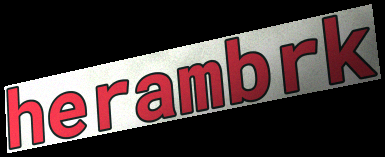
herambrk